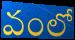
వంలో